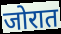
जोरात